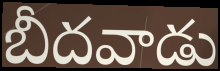
బీదవాడు